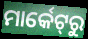
ମାର୍କେଟ୍‌ରୁ